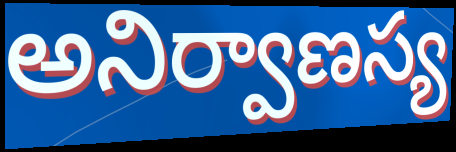
అనిర్వాణస్య